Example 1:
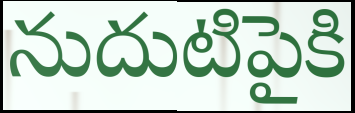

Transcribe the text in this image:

నుదుటిపైకి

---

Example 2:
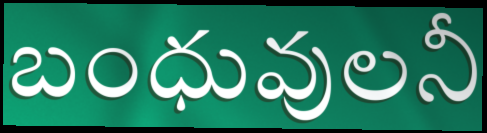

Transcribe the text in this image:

బంధువులనీ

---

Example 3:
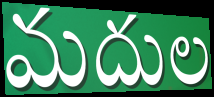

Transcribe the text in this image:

మదుల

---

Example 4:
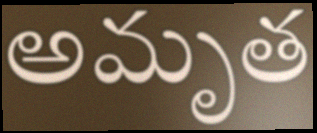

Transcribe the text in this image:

అమృత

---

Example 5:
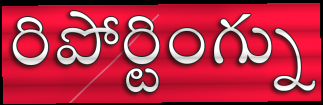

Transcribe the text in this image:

రిపోర్టింగ్ను